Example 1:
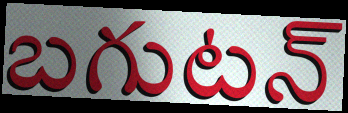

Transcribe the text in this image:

బగుటన్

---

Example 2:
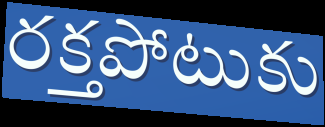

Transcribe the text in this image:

రక్తపోటుకు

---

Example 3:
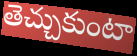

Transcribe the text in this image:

తెచ్చుకుంటా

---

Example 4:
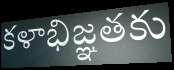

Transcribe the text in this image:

కళాభిజ్ఞతకు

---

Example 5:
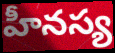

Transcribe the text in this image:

హీనస్య